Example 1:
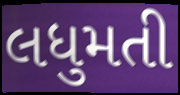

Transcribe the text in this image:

લધુમતી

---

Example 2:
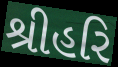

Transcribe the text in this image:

શ્રીહરિ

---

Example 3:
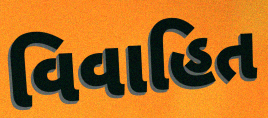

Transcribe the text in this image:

વિવાહિત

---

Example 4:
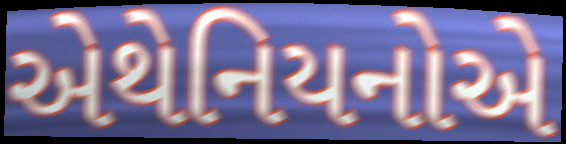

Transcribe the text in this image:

એથેનિયનોએ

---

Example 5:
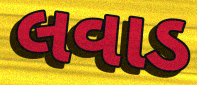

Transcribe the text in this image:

લવાડ